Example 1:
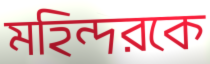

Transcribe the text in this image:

মহিন্দরকে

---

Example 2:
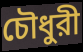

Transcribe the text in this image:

চৌধুরী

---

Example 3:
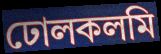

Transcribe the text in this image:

ঢোলকলমি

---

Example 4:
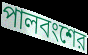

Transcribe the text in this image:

পালবংশের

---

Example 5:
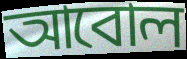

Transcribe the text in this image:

আবোল